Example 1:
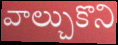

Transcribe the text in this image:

వాల్చుకొని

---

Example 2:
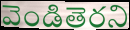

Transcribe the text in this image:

వెండితెరని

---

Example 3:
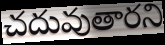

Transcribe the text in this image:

చదువుతారని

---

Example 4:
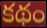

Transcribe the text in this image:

కథం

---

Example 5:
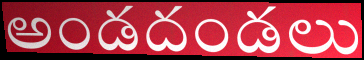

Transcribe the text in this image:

అండదండలు